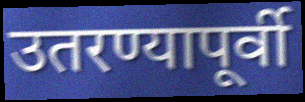
उतरण्यापूर्वी